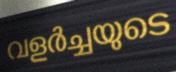
വളർച്ചയുടെ